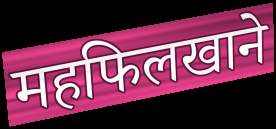
महफिलखाने